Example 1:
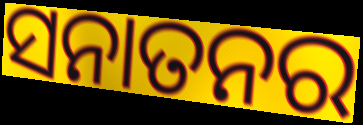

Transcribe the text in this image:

ସନାତନର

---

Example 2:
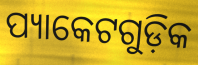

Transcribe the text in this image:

ପ୍ୟାକେଟଗୁଡ଼ିକ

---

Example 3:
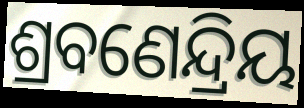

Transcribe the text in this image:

ଶ୍ରବଣେନ୍ଦ୍ରିୟ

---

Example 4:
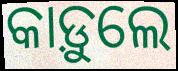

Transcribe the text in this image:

କାଡ଼ୁଲେ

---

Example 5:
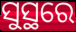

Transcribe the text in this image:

ସୁସ୍ଥରେ